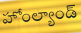
హోంల్యాండ్